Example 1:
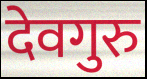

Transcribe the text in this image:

देवगुरु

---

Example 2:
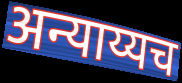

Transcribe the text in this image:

अन्याय्यच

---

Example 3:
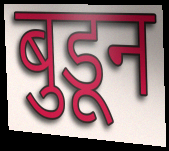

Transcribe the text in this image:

बुडून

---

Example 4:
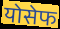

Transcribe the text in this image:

योसेफ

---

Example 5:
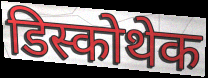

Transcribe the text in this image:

डिस्कोथेक